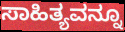
ಸಾಹಿತ್ಯವನ್ನೂ